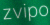
zvipo